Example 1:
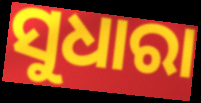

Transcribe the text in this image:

ସୁଧାରା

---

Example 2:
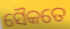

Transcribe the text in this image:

ସୈକତେ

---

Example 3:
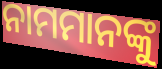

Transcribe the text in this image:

ନାମମାନଙ୍କୁ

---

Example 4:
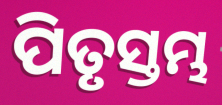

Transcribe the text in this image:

ପିତୃସ୍ତମ୍ଭ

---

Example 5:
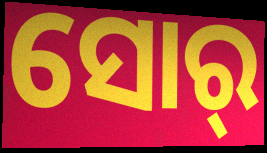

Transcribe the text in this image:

ସୋର୍